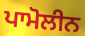
ਪਾਮੋਲੀਨ